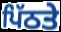
ਪਿੱਠਤੇ